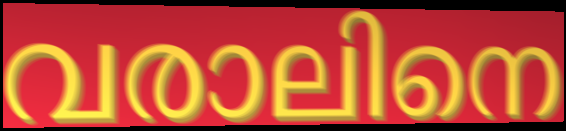
വരാലിനെ